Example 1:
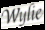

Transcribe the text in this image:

Wylie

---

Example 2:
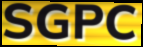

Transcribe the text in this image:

SGPC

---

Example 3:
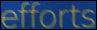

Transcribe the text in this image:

efforts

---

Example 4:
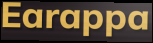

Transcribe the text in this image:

Earappa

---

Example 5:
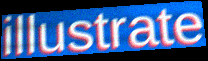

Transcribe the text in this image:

illustrate